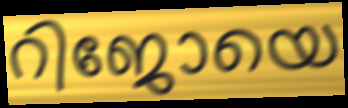
റിജോയെ